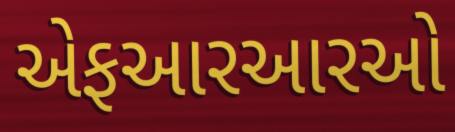
એફઆરઆરઓ